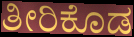
ತೀರಿಕೊಡ